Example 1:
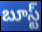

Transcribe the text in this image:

బూస్ట్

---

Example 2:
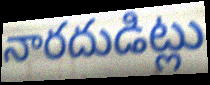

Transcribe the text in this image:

నారదుడిట్లు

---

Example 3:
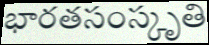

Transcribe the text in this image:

భారతసంస్కృతి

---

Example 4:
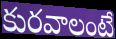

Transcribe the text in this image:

కురవాలంటే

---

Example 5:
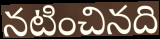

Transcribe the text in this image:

నటించినది